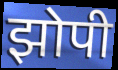
झोपी